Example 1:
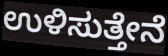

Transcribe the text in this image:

ಉಳಿಸುತ್ತೇನೆ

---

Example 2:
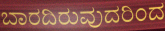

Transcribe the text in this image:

ಬಾರದಿರುವುದರಿಂದ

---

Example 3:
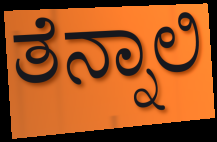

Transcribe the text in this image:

ತೆನ್ನಾಲಿ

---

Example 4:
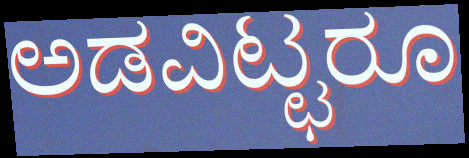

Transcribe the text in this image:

ಅಡವಿಟ್ಟರೂ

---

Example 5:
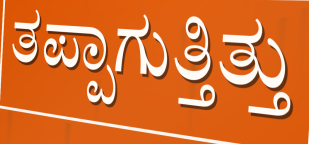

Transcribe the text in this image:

ತಪ್ಪಾಗುತ್ತಿತ್ತು